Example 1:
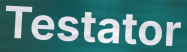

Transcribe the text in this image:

Testator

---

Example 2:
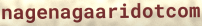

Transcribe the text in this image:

nagenagaaridotcom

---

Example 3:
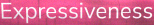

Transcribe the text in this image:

Expressiveness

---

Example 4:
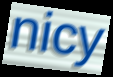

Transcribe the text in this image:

nicy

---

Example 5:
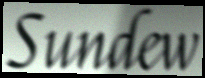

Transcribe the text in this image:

Sundew